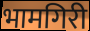
भामगिरी